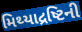
મિથ્યાદ્રષ્ટિની